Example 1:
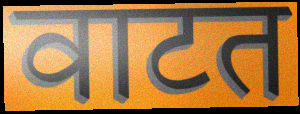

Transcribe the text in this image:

वाटत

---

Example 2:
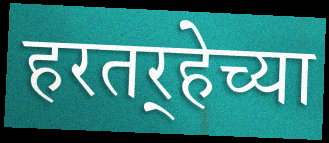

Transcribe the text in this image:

हरतर्हेच्या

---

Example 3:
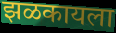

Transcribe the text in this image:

झळकायला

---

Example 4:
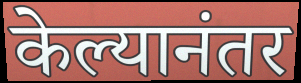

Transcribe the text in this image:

केल्यानंतर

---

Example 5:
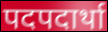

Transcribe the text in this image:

पदपदार्था